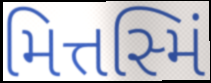
મિત્તસ્મિં